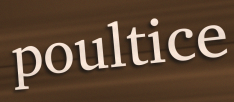
poultice